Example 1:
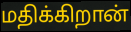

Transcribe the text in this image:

மதிக்கிறான்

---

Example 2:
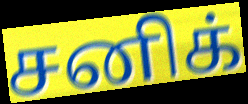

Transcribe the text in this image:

சனிக்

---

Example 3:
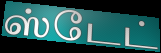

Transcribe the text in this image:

ஸ்டேட்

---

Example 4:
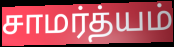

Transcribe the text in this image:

சாமர்த்யம்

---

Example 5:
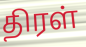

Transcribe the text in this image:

திரள்